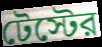
টেস্টের